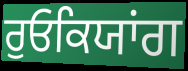
ਰੁਓਕਿਯਾਂਗ